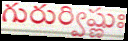
గురుర్విష్ణుః